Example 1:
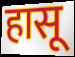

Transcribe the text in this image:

हासू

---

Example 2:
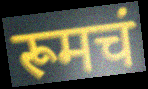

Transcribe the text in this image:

रूमचं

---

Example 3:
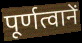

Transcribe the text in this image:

पूर्णत्वानें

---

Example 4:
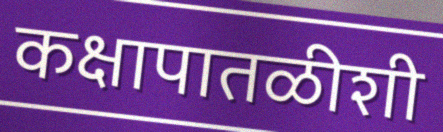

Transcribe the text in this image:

कक्षापातळीशी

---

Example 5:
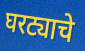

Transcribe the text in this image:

घरट्याचे